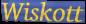
Wiskott